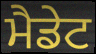
ਮੈਡੇਟ